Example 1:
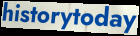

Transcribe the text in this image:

historytoday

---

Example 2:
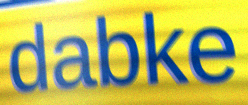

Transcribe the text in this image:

dabke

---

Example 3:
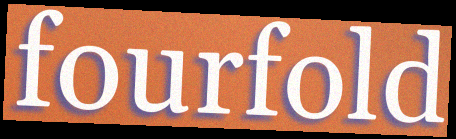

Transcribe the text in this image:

fourfold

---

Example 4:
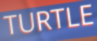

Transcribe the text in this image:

TURTLE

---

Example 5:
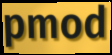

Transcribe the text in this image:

pmod